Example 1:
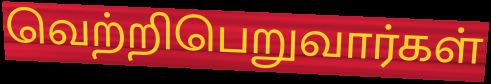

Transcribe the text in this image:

வெற்றிபெறுவார்கள்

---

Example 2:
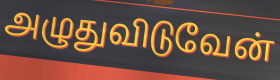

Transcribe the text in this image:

அழுதுவிடுவேன்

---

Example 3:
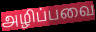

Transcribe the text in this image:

அழிப்பவை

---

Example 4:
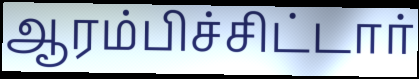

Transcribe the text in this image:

ஆரம்பிச்சிட்டார்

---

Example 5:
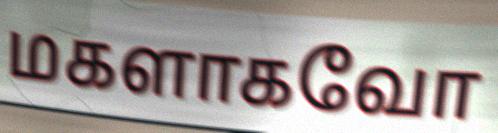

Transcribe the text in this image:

மகளாகவோ